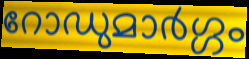
റോഡുമാർഗ്ഗം